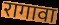
रागावा